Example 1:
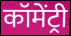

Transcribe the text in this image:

कॉमेंट्री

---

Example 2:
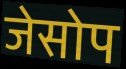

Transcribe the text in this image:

जेसोप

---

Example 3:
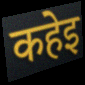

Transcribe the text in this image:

कहेइ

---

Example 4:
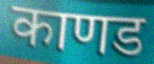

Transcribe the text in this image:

काणड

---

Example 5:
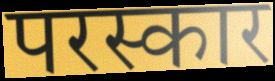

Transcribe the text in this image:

परस्कार